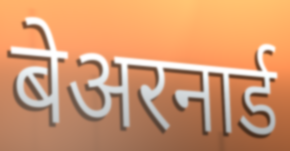
बेअरनार्ड